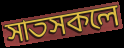
সাতসকলে